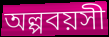
অল্পবয়সী